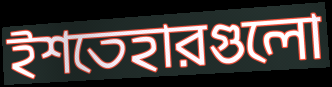
ইশতেহারগুলো